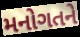
મનોગતને